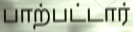
பாற்பட்டார்